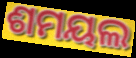
ଶମୟଲ